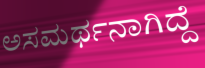
ಅಸಮರ್ಥನಾಗಿದ್ದೆ